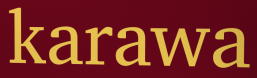
karawa